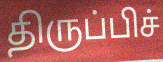
திருப்பிச்